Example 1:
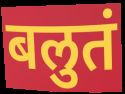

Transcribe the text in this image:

बलुतं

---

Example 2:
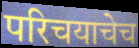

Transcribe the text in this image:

परिचयाचेच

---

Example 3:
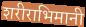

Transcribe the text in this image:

शरीराभिमानी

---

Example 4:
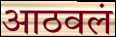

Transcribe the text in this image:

आठवलं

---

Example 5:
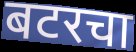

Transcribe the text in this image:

बटरचा